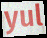
yul